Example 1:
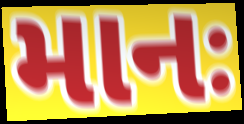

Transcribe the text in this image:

માનઃ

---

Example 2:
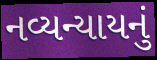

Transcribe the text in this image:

નવ્યન્યાયનું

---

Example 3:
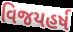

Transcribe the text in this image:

વિજયહર્ષ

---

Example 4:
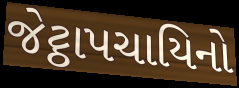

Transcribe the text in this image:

જેટ્ઠાપચાયિનો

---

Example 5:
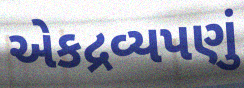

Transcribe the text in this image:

એકદ્રવ્યપણું